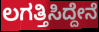
ಲಗತ್ತಿಸಿದ್ದೇನೆ